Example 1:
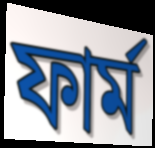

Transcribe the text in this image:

ফাৰ্ম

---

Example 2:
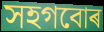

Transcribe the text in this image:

সহগবোৰ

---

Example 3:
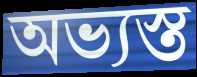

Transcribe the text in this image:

অভ্যস্ত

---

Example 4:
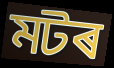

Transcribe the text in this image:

মটৰ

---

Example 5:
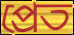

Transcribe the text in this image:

প্ৰেত